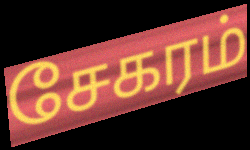
சேகரம்